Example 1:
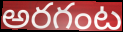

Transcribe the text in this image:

అరగంట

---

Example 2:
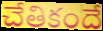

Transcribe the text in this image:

చేతికందే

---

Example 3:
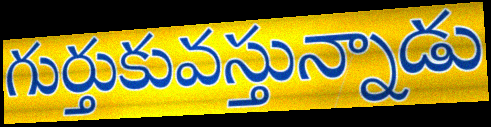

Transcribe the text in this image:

గుర్తుకువస్తున్నాడు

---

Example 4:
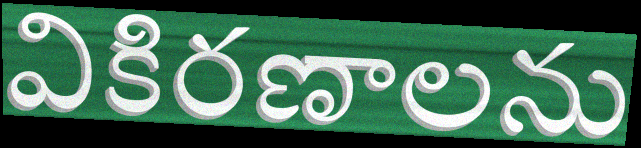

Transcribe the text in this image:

వికిరణాలను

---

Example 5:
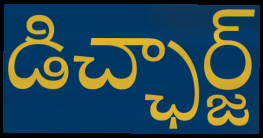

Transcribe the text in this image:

డిచ్ఛార్జ్